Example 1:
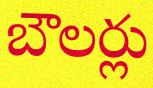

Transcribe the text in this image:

బౌలర్లు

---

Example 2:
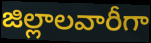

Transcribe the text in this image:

జిల్లాలవారీగా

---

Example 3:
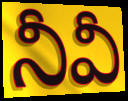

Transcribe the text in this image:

నీవీ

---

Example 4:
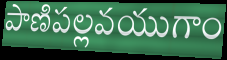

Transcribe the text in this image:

పాణిపల్లవయుగాం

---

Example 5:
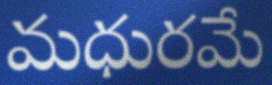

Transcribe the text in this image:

మధురమే